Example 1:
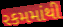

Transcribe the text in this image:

રકમમાંથી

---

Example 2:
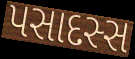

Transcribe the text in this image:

પસાદસ્સ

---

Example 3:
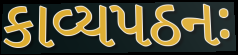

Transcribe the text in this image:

કાવ્યપઠનઃ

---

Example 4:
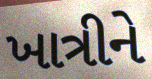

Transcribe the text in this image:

ખાત્રીને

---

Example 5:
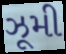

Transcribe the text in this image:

ઝૂમી